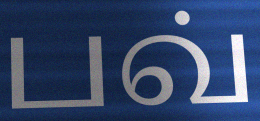
பவ்